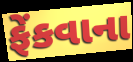
ફેંકવાના